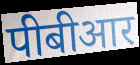
पीबीआर